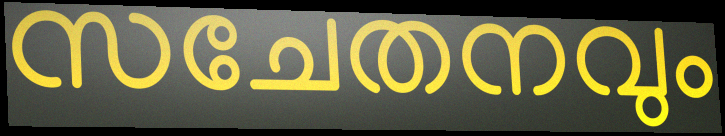
സചേതനവും